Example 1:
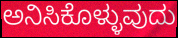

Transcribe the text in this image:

ಅನಿಸಿಕೊಳ್ಳುವುದು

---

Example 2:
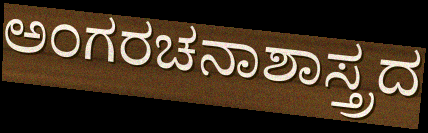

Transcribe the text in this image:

ಅಂಗರಚನಾಶಾಸ್ತ್ರದ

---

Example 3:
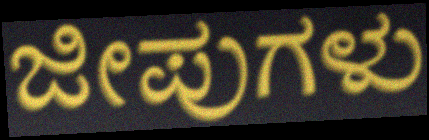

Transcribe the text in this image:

ಜೀಪುಗಳು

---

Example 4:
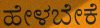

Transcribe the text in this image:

ಹೇಳಬೇಕೆ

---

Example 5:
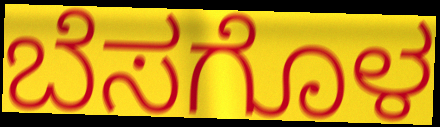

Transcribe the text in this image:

ಬೆಸಗೊಳ